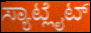
ಸ್ಯಾಟ್ಲೈಟ್